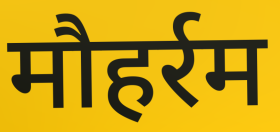
मौहर्रम